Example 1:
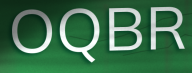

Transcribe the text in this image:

OQBR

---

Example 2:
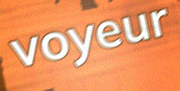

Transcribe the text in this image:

voyeur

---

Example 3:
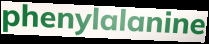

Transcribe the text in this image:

phenylalanine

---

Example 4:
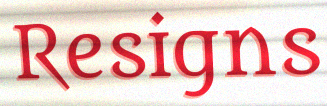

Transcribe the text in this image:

Resigns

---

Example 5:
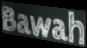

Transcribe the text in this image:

Bawah